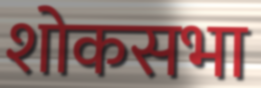
शोकसभा